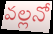
వల్లనో